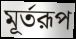
মূর্তরূপ